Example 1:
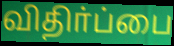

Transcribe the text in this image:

விதிர்ப்பை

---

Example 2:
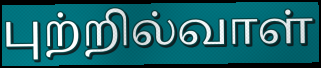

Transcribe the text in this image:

புற்றில்வாள்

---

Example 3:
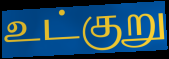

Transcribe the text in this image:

உட்குறு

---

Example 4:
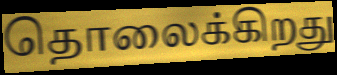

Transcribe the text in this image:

தொலைக்கிறது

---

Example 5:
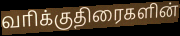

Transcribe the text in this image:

வரிக்குதிரைகளின்